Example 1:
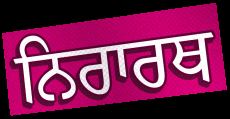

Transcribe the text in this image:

ਨਿਰਾਰਥ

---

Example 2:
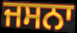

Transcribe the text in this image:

ਜਸਨਾ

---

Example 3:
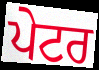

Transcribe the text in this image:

ਪੇਟਰ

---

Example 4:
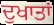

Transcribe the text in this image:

ਦੁਖਾਤਾਂ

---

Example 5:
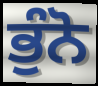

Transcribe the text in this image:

ਭੁੰਨੋ